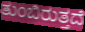
ತುಂಬಿರುತ್ತದೆ